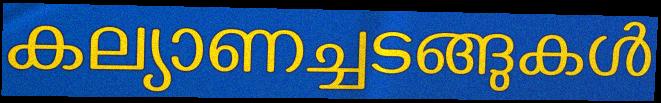
കല്യാണച്ചടങ്ങുകൾ